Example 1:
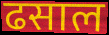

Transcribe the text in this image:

ढसाल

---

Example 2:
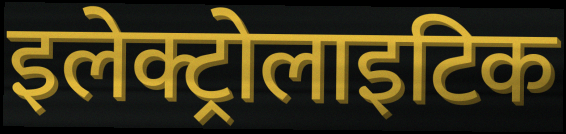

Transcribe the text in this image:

इलेक्ट्रोलाइटिक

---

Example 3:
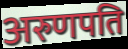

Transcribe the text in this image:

अरुणपति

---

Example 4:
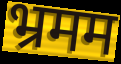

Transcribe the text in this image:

भ्रमम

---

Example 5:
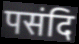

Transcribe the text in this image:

पसंदि